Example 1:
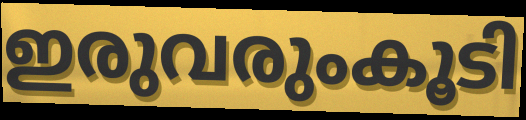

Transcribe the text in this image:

ഇരുവരുംകൂടി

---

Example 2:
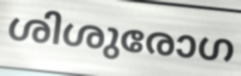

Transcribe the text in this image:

ശിശുരോഗ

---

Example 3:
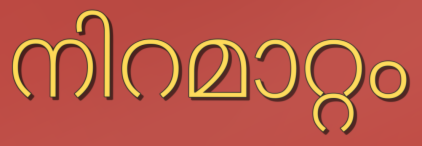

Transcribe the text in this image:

നിറമാറ്റം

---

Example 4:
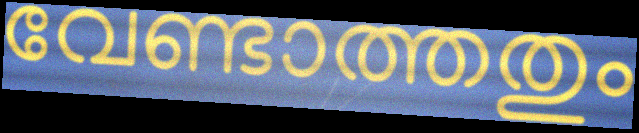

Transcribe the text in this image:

വേണ്ടാത്തതും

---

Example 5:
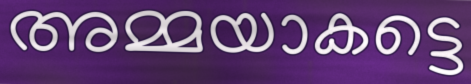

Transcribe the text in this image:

അമ്മയാകട്ടെ